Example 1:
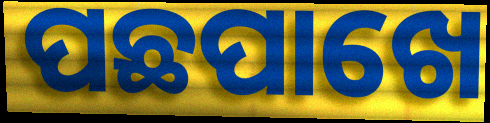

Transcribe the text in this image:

ପଛପାଖେ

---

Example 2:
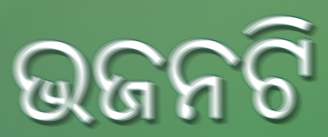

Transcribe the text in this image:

ଭଜନଟି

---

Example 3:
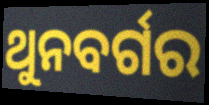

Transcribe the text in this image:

ଥୁନବର୍ଗର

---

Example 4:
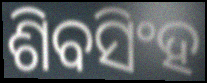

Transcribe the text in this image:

ଶିବସିଂହ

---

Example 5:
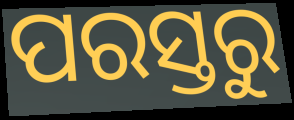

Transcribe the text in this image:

ପରସ୍ତରୁ